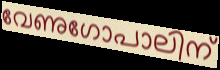
വേണുഗോപാലിന്